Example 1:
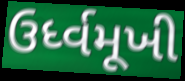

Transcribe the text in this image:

ઉર્ધ્વમૂખી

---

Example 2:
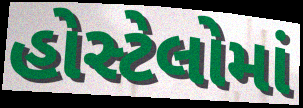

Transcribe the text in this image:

હોસ્ટેલોમાં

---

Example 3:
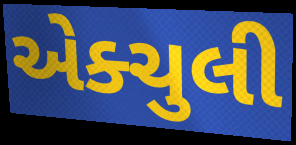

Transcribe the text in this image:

એક્ચુલી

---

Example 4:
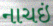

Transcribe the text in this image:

નાચઇં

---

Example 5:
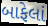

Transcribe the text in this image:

બાફેલાં